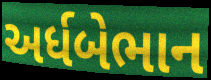
અર્ધબેભાન